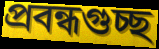
প্রবন্ধগুচ্ছ